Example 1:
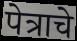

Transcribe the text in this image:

पेत्राचे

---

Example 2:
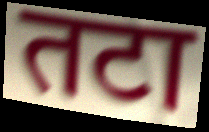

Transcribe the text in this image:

तटा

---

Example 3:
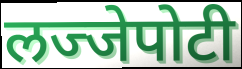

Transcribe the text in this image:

लज्जेपोटी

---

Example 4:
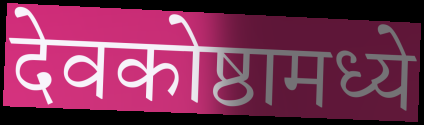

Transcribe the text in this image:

देवकोष्ठामध्ये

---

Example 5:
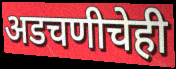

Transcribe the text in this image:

अडचणीचेही